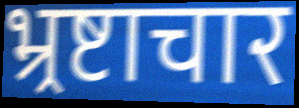
भ्र्रष्टाचार